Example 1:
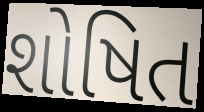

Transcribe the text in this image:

શોષિત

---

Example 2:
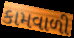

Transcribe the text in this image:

કામવાળી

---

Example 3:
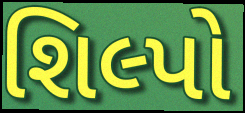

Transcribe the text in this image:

શિલ્પો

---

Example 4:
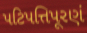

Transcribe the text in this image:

પટિપત્તિપૂરણં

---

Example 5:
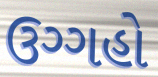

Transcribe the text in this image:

ઉગ્ગહો